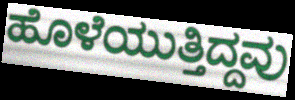
ಹೊಳೆಯುತ್ತಿದ್ದವು